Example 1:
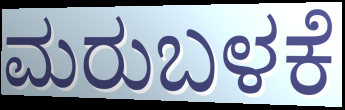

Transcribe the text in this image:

ಮರುಬಳಕೆ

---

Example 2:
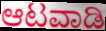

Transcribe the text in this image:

ಆಟವಾಡಿ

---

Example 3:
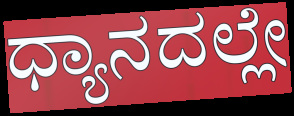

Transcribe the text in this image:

ಧ್ಯಾನದಲ್ಲೇ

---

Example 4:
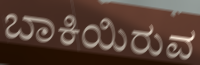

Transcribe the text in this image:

ಬಾಕಿಯಿರುವ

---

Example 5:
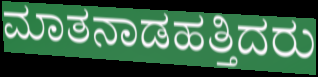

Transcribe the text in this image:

ಮಾತನಾಡಹತ್ತಿದರು